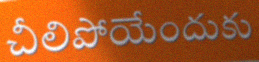
చీలిపోయేందుకు